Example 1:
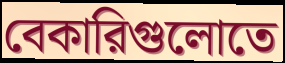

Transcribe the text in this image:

বেকারিগুলোতে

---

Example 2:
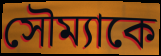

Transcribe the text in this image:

সৌম্যাকে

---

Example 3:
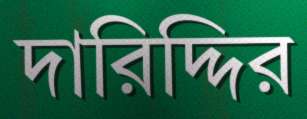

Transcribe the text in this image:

দারিদ্দির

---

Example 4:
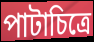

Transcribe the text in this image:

পাটাচিত্রে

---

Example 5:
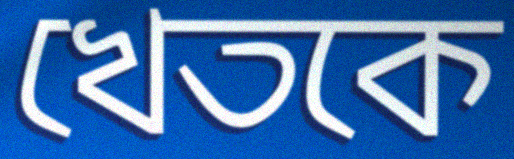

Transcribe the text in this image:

খেতকে